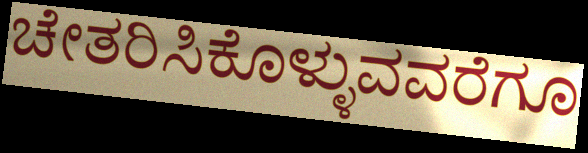
ಚೇತರಿಸಿಕೊಳ್ಳುವವರೆಗೂ